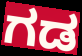
ಗಡ